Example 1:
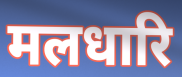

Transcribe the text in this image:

मलधारि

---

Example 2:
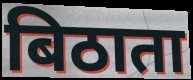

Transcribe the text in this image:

बिठाता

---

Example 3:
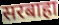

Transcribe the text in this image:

सरबाहा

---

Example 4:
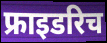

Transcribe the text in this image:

फ्राइडरिच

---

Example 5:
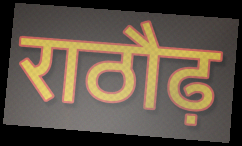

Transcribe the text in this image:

राठौढ़